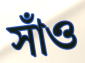
সাঁও